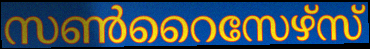
സൺറൈസേഴ്സ്